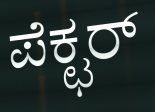
ಪೆಕ್ಟರ್